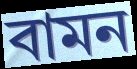
বামন